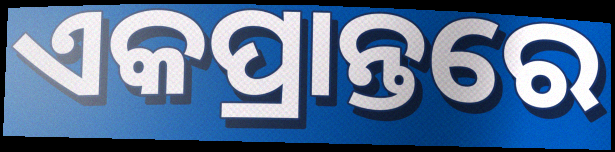
ଏକପ୍ରାନ୍ତରେ